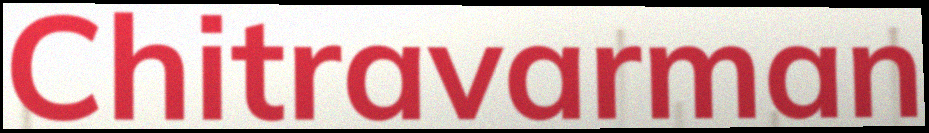
Chitravarman